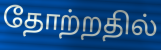
தோற்றதில்